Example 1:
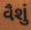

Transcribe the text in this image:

વૈશું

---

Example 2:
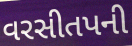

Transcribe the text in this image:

વરસીતપની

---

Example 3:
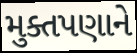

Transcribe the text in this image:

મુક્તપણાને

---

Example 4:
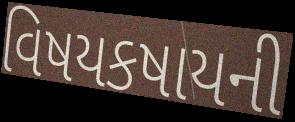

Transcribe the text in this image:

વિષયકષાયની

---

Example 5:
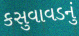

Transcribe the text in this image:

કસુવાવડનું